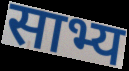
साभ्य